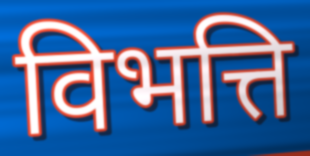
विभत्ति